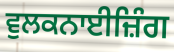
ਵੁਲਕਨਾਈਜ਼ਿੰਗ